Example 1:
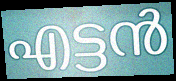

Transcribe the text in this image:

എട്ടൻ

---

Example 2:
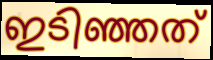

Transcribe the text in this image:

ഇടിഞ്ഞത്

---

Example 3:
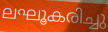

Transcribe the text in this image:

ലഘൂകരിച്ചു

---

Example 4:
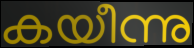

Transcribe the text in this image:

കയീന്നു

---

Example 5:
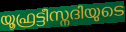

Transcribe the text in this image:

യൂഫ്രട്ടീസ്നദിയുടെ